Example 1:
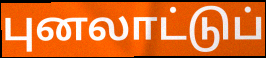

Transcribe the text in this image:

புனலாட்டுப்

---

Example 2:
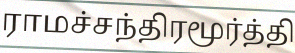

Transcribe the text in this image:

ராமச்சந்திரமூர்த்தி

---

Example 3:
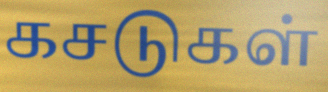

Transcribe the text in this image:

கசடுகள்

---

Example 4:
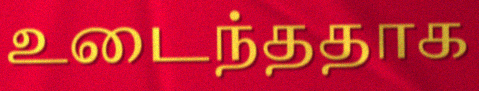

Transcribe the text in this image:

உடைந்ததாக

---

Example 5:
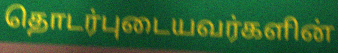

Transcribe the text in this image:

தொடர்புடையவர்களின்